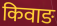
किवाङ